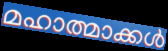
മഹാത്മാക്കൾ